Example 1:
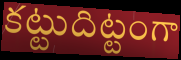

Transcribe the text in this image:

కట్టుదిట్టంగా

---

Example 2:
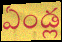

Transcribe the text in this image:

ఏండ్ల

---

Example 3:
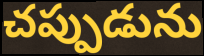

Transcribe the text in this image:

చప్పుడును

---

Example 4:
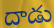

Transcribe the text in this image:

దాడు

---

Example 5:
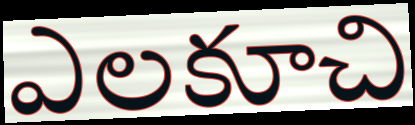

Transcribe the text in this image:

ఎలకూచి